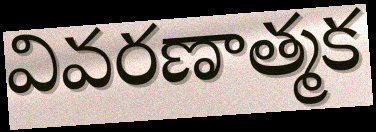
వివరణాత్మక